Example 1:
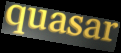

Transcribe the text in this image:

quasar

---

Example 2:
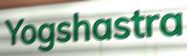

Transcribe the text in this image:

Yogshastra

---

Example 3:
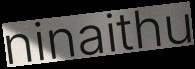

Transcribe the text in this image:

ninaithu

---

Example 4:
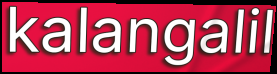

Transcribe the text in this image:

kalangalil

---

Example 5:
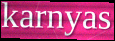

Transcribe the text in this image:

karnyas